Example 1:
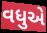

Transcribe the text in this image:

વધુએ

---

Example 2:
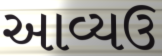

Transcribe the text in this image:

આવ્યઉ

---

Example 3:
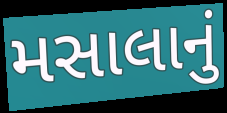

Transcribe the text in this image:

મસાલાનું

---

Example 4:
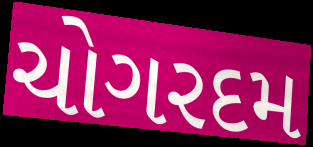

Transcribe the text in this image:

ચોગરદમ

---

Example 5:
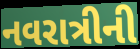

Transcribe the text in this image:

નવરાત્રીની